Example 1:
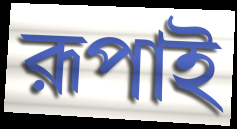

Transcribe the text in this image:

রূপাই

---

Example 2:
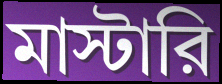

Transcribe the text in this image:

মাস্টারি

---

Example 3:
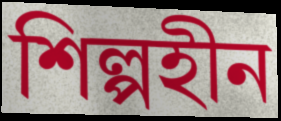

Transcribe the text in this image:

শিল্পহীন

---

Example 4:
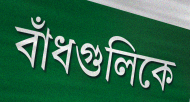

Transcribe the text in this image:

বাঁধগুলিকে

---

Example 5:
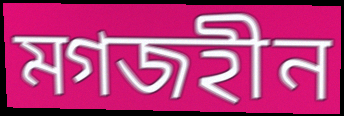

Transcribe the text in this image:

মগজহীন